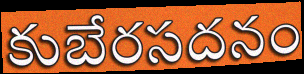
కుబేరసదనం